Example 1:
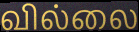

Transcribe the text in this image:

வில்லை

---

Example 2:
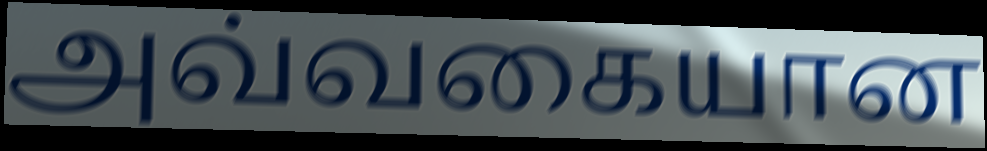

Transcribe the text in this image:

அவ்வகையான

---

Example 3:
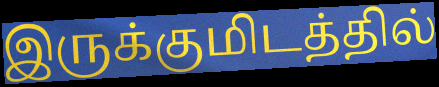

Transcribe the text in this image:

இருக்குமிடத்தில்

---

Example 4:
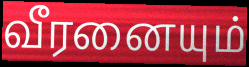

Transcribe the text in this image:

வீரனையும்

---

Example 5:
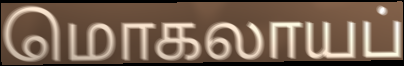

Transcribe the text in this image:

மொகலாயப்